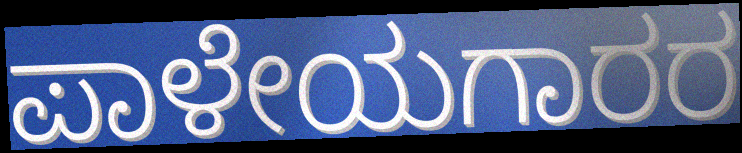
ಪಾಳೇಯಗಾರರ